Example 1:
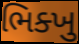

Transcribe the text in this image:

ભિક્ખુ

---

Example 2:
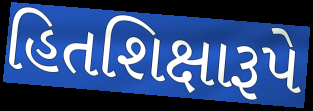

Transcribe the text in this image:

હિતશિક્ષારૂપે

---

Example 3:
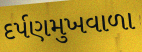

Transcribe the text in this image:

દર્પણમુખવાળા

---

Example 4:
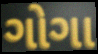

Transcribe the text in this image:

ગોગા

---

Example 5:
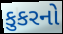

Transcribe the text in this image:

કુકરનો